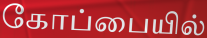
கோப்பையில்